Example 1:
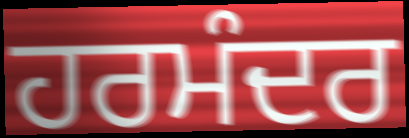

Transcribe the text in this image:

ਹਰਮੰਦਰ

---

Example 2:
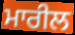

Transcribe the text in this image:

ਮਾਰੀਲ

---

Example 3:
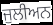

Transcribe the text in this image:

ਜੁਲੀਅਨ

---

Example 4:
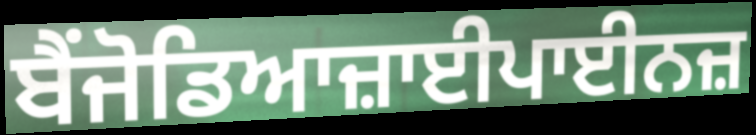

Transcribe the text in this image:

ਬੈਂਜੋਡਿਆਜ਼ਾਈਪਾਈਨਜ਼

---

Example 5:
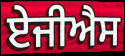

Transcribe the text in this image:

ਏਜੀਐਸ